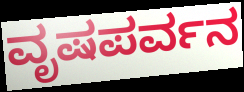
ವೃಷಪರ್ವನ